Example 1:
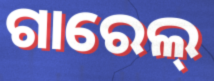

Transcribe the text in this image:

ଗାରେଲ୍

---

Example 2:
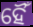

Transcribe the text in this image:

ହୈଁ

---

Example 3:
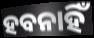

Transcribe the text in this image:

ହବନାହିଁ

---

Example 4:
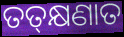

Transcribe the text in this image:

ତତ୍‌କ୍ଷଣାତ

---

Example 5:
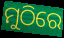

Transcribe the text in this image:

ମୁଠିରେ